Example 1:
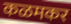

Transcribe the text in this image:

कळमकर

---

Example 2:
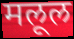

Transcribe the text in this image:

मलूल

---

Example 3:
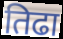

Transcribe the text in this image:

तिढा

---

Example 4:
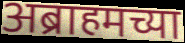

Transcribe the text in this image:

अब्राहमच्या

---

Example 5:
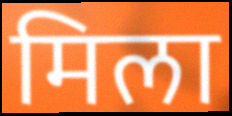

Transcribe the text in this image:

मिला